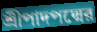
শ্রীপাদপদ্মের